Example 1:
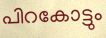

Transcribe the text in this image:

പിറകോട്ടും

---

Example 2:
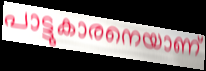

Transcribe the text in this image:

പാട്ടുകാരനെയാണ്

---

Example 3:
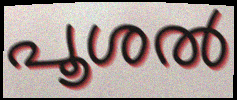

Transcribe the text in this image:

പൂശൽ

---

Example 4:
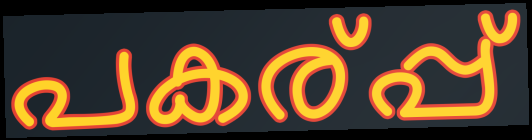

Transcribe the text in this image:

പകര്പ്പ്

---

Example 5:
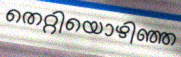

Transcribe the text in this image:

തെറ്റിയൊഴിഞ്ഞ